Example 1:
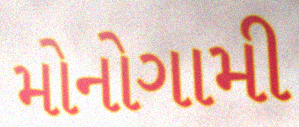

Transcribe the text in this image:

મોનોગામી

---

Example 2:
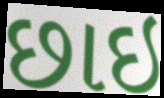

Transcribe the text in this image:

છાઇ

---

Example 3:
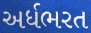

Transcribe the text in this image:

અર્ધભરત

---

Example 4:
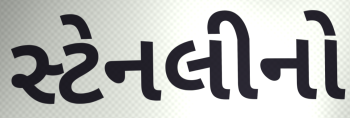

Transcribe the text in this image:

સ્ટેનલીનો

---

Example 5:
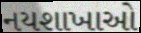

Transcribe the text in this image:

નયશાખાઓ